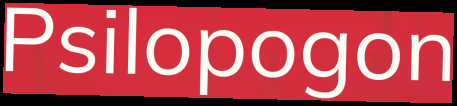
Psilopogon